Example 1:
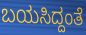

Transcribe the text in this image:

ಬಯಸಿದ್ದಂತೆ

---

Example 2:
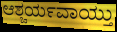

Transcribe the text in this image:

ಆಶ್ಚರ್ಯವಾಯ್ತು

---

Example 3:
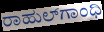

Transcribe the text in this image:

ರಾಹುಲ್‌ಗಾಂಧಿ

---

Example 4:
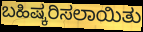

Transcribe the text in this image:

ಬಹಿಷ್ಕರಿಸಲಾಯಿತು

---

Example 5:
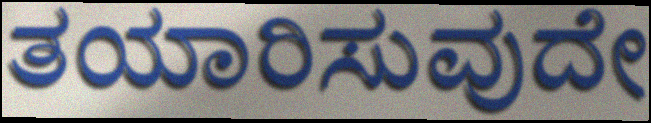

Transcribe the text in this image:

ತಯಾರಿಸುವುದೇ